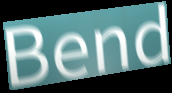
Bend